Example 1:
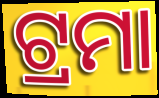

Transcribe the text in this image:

ଟ୍ରମା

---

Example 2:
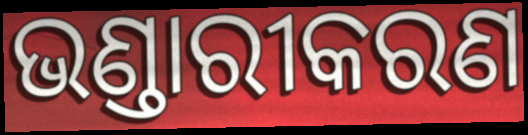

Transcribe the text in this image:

ଭଣ୍ଡାରୀକରଣ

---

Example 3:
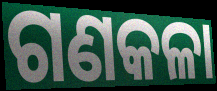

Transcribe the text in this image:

ଗଣକଳା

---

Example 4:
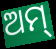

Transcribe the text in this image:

ଅମ୍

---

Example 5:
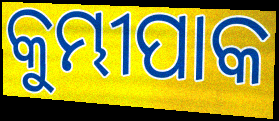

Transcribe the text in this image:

କୁମ୍ଭୀପାକ